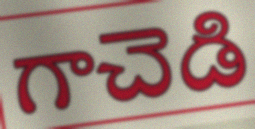
గాచెడి